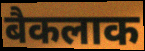
बैकलाक